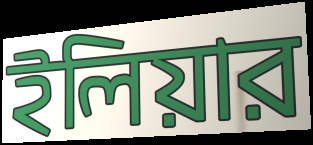
ইলিয়ার